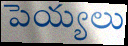
పెయ్యలు